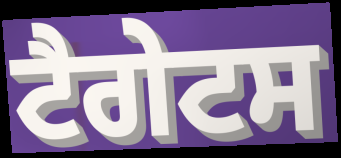
ਟੈਗੇਟਸ